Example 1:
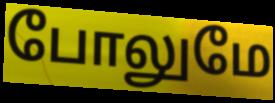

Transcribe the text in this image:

போலுமே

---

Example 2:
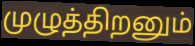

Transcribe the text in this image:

முழுத்திறனும்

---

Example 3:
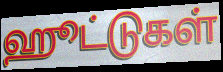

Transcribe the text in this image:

ஹூட்டுகள்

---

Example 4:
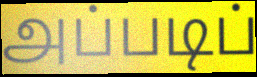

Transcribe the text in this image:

அப்படிப்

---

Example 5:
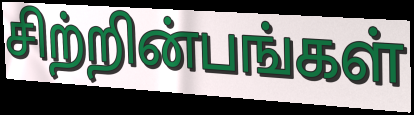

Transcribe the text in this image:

சிற்றின்பங்கள்